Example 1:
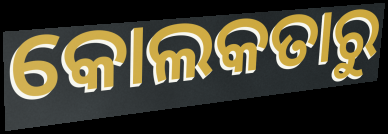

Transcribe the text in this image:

କୋଲକତାରୁ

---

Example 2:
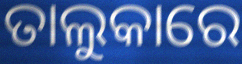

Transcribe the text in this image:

ତାଲୁକାରେ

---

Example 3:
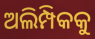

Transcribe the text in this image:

ଅଲିମ୍ପିକକୁ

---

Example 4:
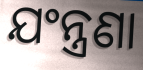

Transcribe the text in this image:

ଯଂନ୍ତ୍ରଣା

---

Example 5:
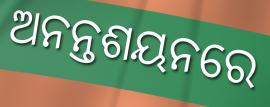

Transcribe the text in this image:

ଅନନ୍ତଶୟନରେ